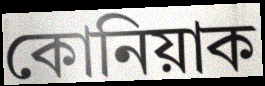
কোনিয়াক